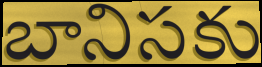
బానిసకు